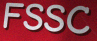
FSSC